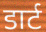
डार्ट